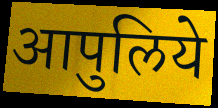
आपुलिये